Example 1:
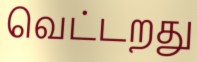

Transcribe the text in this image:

வெட்டறது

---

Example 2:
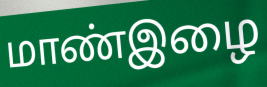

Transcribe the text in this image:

மாண்இழை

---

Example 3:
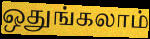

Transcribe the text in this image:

ஒதுங்கலாம்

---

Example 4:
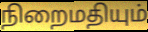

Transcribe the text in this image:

நிறைமதியும்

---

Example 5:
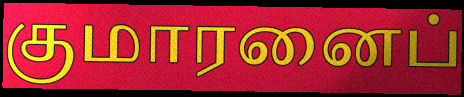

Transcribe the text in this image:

குமாரனைப்